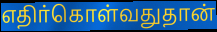
எதிர்கொள்வதுதான்